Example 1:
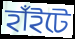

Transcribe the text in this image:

হাঁইটে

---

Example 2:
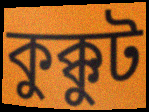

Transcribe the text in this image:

কুক্কুট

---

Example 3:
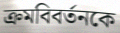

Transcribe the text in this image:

ক্রমবিবর্তনকে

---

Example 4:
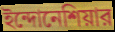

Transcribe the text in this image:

ইন্দোনেশিয়ার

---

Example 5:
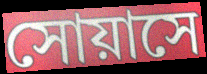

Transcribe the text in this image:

সোয়াসে